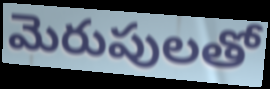
మెరుపులతో